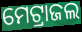
ମେଟ୍ରାଜଲ